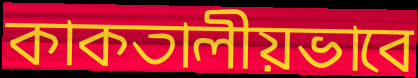
কাকতালীয়ভাবে